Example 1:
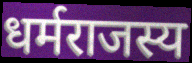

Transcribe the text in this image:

धर्मराजस्य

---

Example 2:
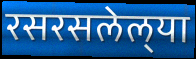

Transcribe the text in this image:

रसरसलेल्या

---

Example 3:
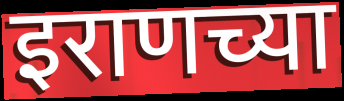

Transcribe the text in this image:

इराणच्या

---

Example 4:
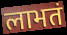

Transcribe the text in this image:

लाभतं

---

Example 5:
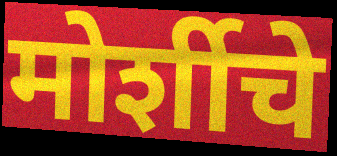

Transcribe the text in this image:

मोर्शीचे